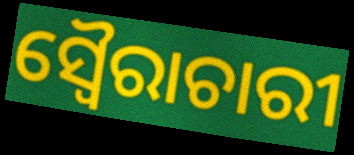
ସ୍ୱୈରାଚାରୀ